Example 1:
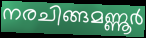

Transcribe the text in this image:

നരചിങ്ങമണ്ണൂർ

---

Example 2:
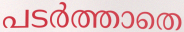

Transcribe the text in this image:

പടർത്താതെ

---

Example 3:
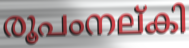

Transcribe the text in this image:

രൂപംനല്കി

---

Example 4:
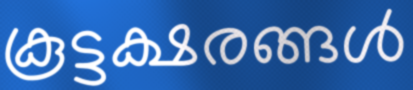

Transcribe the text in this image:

കൂട്ടക്ഷരങ്ങൾ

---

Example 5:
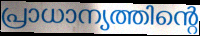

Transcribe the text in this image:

പ്രാധാന്യത്തിന്റെ